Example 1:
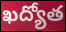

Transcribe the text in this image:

ఖద్యోత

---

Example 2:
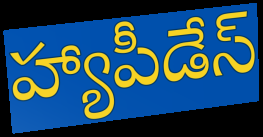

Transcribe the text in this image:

హ్యాపీడేస్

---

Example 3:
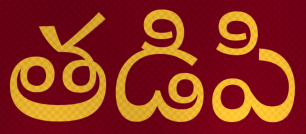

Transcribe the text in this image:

తడిపి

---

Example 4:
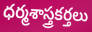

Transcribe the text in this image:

ధర్మశాస్త్రకర్తలు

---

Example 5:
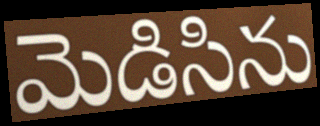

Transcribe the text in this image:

మెడిసిను